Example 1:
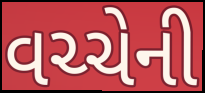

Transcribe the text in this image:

વચ્ચેની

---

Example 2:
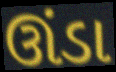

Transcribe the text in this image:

ઊંડા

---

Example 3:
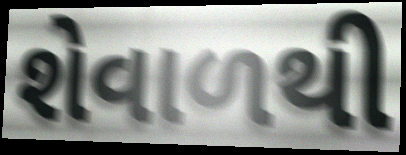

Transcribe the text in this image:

શેવાળથી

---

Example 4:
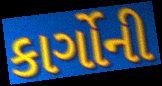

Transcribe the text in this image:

કાર્ગોની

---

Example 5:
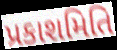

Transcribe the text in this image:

પ્રકાશમિતિ